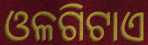
ଓଳଗିଟାଏ